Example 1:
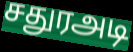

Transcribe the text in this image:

சதுரஅடி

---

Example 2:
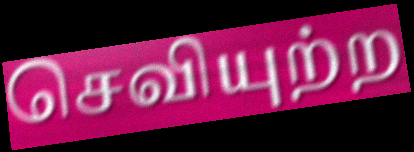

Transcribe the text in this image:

செவியுற்ற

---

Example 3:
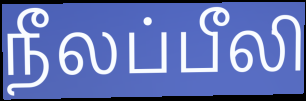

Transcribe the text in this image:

நீலப்பீலி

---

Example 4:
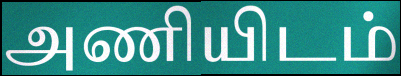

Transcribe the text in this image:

அணியிடம்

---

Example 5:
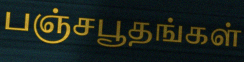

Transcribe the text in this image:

பஞ்சபூதங்கள்